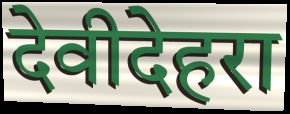
देवीदेहरा